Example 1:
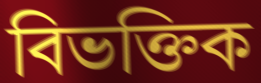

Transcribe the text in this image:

বিভক্তিক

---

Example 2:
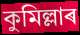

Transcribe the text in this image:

কুমিল্লাৰ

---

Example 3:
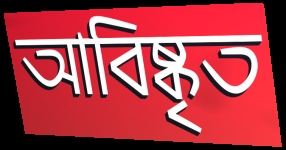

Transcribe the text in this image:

আবিষ্কৃত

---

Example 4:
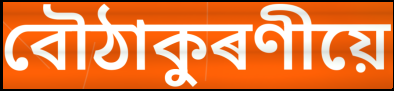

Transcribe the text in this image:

বৌঠাকুৰণীয়ে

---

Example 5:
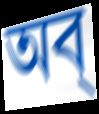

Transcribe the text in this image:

অব্